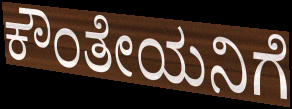
ಕೌಂತೇಯನಿಗೆ